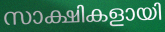
സാക്ഷികളായി